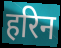
हरिन